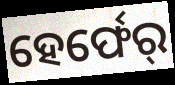
ହେର୍ଫେର୍